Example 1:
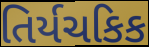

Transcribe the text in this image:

તિર્યચકિક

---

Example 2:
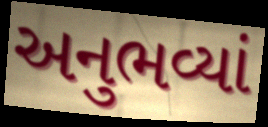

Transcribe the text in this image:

અનુભવ્યાં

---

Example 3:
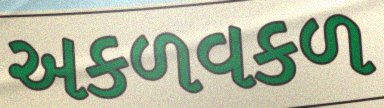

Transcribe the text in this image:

અકળવકળ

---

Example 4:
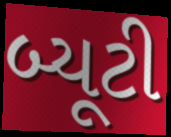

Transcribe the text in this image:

બ્યૂટી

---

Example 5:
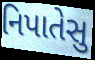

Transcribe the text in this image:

નિપાતેસુ